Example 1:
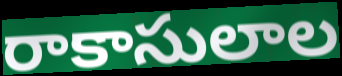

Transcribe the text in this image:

రాకాసులాల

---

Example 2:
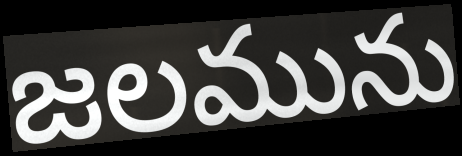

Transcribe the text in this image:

జలమును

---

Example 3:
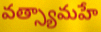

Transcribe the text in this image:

వత్స్యామహే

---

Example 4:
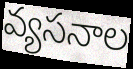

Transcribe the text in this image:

వ్యసనాల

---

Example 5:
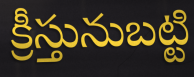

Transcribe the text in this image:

క్రీస్తునుబట్టి